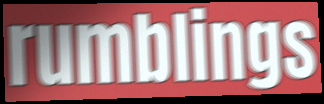
rumblings